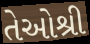
તેઓશ્રી